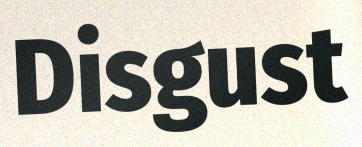
Disgust